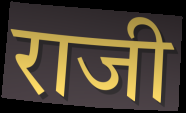
राजी